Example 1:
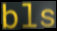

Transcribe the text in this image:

bls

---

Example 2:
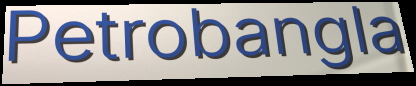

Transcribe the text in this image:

Petrobangla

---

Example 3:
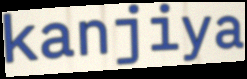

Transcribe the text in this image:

kanjiya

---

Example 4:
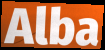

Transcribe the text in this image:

Alba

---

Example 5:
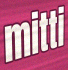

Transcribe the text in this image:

mitti